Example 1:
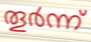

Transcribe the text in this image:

തൂർന്ന്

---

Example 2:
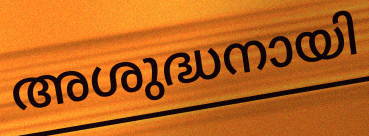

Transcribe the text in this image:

അശുദ്ധനായി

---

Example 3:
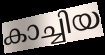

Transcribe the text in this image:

കാച്ചിയ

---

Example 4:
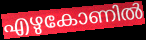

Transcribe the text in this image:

എഴുകോണിൽ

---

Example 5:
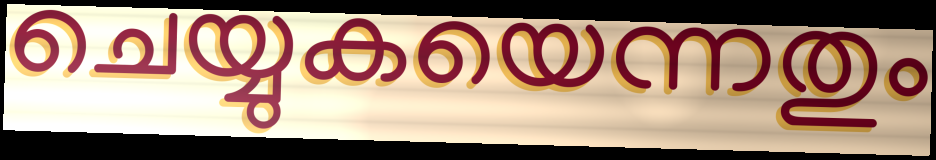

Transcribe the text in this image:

ചെയ്യുകയെന്നതും